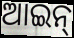
ଆଇନ୍